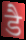
डै